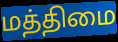
மத்திமை